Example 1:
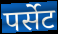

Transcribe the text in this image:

पर्सेट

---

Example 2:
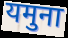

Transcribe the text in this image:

यमुना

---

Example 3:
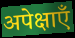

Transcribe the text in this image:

अपेक्षाएँ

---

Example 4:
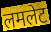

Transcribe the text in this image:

लमलेट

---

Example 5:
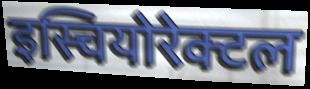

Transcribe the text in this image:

इस्चियोरेक्टल